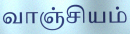
வாஞ்சியம்